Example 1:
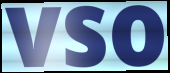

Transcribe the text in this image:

vso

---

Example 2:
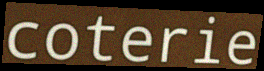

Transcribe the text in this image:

coterie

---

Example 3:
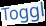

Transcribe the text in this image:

Toggl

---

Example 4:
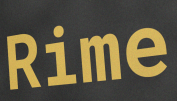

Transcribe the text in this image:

Rime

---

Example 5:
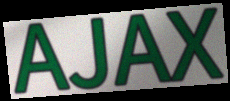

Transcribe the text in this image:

AJAX